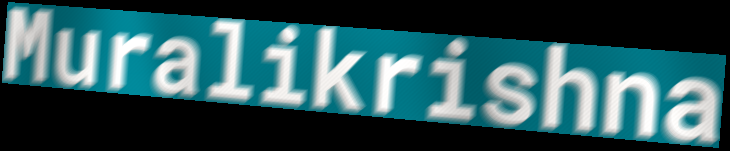
Muralikrishna